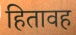
हितावह